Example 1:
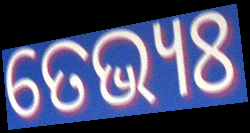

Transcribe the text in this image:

ତେଭ୍ୟଃ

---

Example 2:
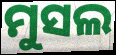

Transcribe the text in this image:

ମୁସଲ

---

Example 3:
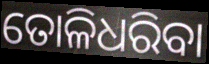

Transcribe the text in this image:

ତୋଳିଧରିବା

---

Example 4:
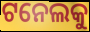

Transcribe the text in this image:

ଟନେଲକୁ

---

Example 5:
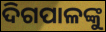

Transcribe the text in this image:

ଦିଗପାଳଙ୍କୁ